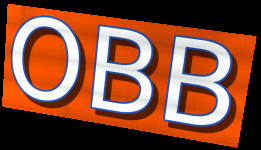
OBB